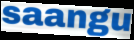
saangu